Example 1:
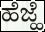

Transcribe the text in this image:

ಹೆಜ್ಹೆ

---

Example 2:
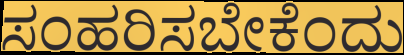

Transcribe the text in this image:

ಸಂಹರಿಸಬೇಕೆಂದು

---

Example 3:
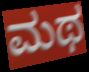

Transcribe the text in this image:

ಮಥ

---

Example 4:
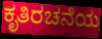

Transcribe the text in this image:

ಕೃತಿರಚನೆಯ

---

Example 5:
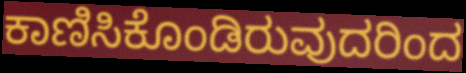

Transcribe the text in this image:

ಕಾಣಿಸಿಕೊಂಡಿರುವುದರಿಂದ